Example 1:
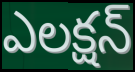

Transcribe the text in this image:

ఎలక్షన్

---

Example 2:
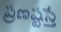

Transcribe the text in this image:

ప్రణష్టస్తే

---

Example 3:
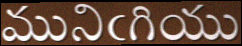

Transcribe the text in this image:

మునిఁగియు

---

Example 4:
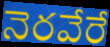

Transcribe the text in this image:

నెరవేరే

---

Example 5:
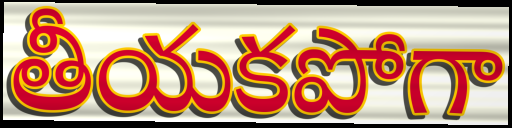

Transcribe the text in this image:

తీయకపోగా